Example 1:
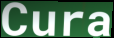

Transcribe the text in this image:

Cura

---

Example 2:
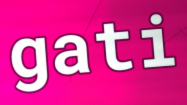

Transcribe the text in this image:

gati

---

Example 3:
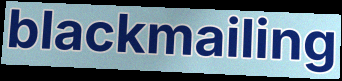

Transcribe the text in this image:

blackmailing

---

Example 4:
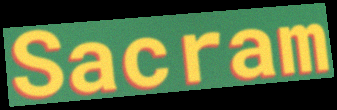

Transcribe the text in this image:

Sacram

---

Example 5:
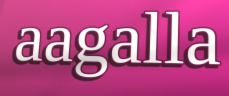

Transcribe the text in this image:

aagalla